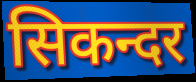
सिकन्दर